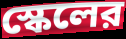
স্কেলের